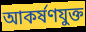
আকর্ষণযুক্ত